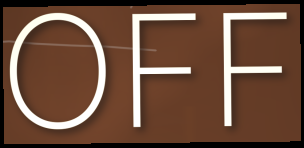
OFF